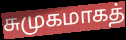
சுமுகமாகத்